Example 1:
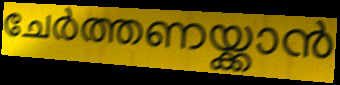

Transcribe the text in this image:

ചേർത്തണയ്ക്കാൻ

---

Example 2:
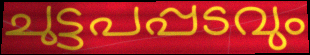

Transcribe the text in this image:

ചുട്ടപപ്പടവും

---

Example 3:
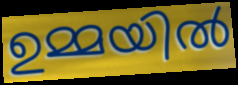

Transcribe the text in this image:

ഉമ്മയിൽ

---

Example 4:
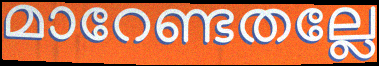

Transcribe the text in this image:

മാറേണ്ടതല്ലേ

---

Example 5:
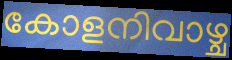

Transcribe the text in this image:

കോളനിവാഴ്ച